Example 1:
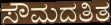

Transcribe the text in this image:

ಸೌಮದತಿತ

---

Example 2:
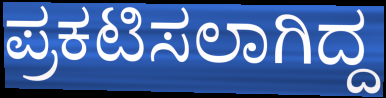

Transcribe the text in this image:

ಪ್ರಕಟಿಸಲಾಗಿದ್ದ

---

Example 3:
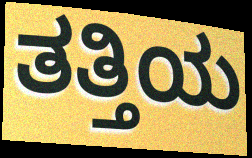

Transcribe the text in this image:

ತತ್ತಿಯ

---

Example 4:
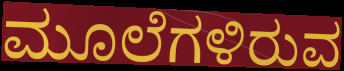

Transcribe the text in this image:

ಮೂಲೆಗಳಿರುವ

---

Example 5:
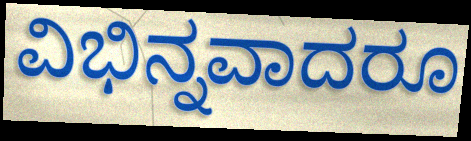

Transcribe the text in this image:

ವಿಭಿನ್ನವಾದರೂ